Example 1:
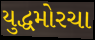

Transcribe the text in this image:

યુદ્ધમોરચા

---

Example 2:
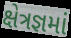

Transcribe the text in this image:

ક્ષેત્રજ્ઞમાં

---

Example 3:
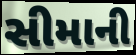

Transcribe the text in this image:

સીમાની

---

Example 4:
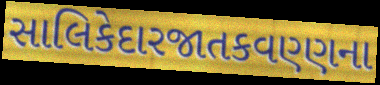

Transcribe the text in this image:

સાલિકેદારજાતકવણ્ણના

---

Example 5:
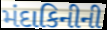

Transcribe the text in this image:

મંદાકિનીની